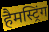
हैमस्ट्रिंग